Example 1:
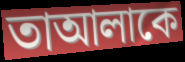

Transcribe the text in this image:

তাআলাকে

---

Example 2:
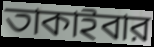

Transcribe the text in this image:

তাকাইবার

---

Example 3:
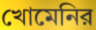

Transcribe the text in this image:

খোমেনির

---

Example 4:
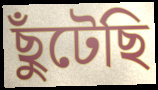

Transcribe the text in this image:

ছুঁটেছি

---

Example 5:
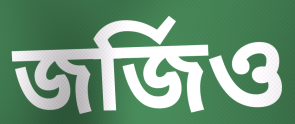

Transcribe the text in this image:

জর্জিও